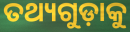
ତଥ୍ୟଗୁଡ଼ାକୁ